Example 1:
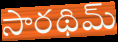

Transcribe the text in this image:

సారథిమ్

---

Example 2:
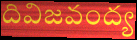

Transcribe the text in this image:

దివిజవంద్య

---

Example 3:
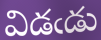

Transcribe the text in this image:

విడఁడు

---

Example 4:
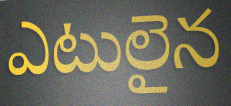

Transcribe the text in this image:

ఎటులైన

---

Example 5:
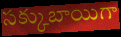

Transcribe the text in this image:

సక్కుబాయిగా